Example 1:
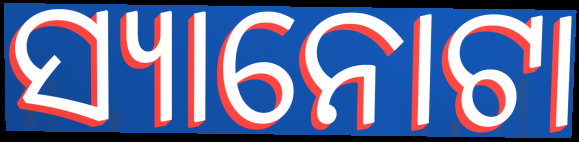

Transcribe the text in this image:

ସ୍ୟାନୋଟା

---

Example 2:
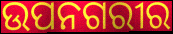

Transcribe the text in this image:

ଉପନଗରୀର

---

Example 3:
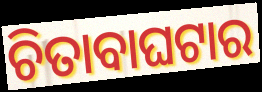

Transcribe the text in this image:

ଚିତାବାଘଟାର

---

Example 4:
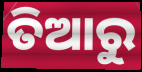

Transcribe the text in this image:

ତିଆରୁ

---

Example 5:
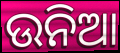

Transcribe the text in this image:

ଉନିଆ